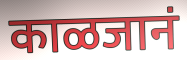
काळजानं